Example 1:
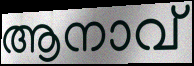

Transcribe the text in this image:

ആനാവ്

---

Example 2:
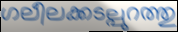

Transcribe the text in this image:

ഗലീലക്കടല്പുറത്തു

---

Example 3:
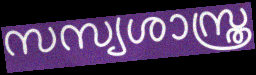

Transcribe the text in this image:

സസ്യശാസ്ത്ര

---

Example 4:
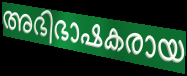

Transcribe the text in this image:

അഭിഭാഷകരായ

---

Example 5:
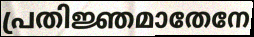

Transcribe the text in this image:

പ്രതിജ്ഞമാതേനേ